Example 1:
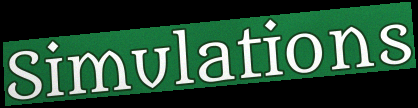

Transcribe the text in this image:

Simulations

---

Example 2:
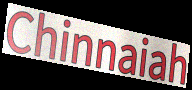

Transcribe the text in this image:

Chinnaiah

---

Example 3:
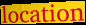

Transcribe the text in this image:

location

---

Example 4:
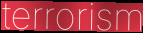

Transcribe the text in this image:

terrorism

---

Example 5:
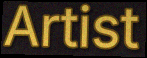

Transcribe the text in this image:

Artist